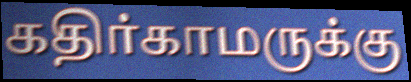
கதிர்காமருக்கு